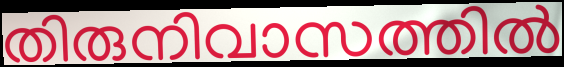
തിരുനിവാസത്തിൽ